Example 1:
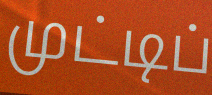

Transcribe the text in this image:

முட்டிப்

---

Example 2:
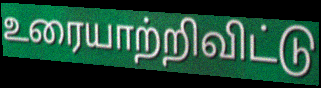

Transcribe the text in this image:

உரையாற்றிவிட்டு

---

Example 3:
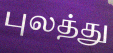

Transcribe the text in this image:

புலத்து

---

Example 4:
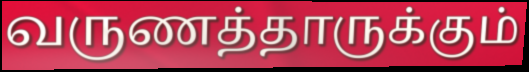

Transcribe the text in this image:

வருணத்தாருக்கும்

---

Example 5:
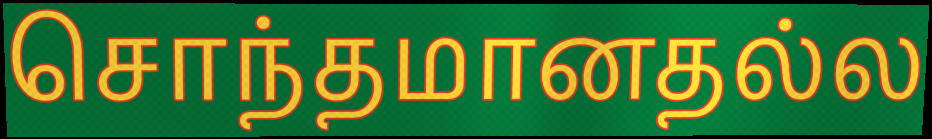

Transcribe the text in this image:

சொந்தமானதல்ல